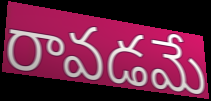
రావడమే